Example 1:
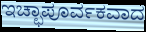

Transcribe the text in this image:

ಇಚ್ಛಾಪೂರ್ವಕವಾದ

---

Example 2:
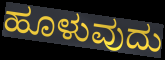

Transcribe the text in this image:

ಹೂಳುವುದು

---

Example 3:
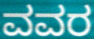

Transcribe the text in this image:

ವವರ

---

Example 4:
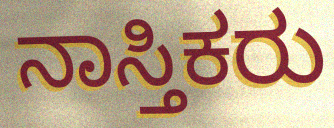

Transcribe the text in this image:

ನಾಸ್ತಿಕರು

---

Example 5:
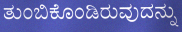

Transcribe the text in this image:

ತುಂಬಿಕೊಂಡಿರುವುದನ್ನು